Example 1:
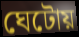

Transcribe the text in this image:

ঘেটোয়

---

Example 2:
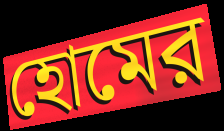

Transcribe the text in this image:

হোমের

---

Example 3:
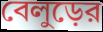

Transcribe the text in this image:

বেলুড়ের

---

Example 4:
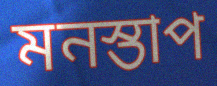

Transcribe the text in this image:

মনস্তাপ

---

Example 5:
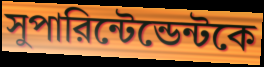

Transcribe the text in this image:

সুপারিন্টেন্ডেন্টকে